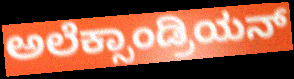
ಅಲೆಕ್ಸಾಂಡ್ರಿಯನ್